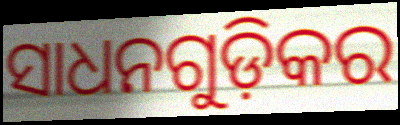
ସାଧନଗୁଡ଼ିକର